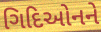
ગિદિઓનને